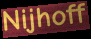
Nijhoff